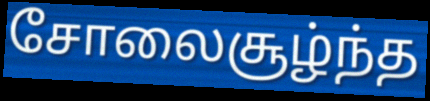
சோலைசூழ்ந்த